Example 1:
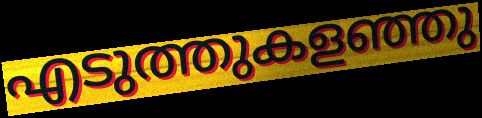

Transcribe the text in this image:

എടുത്തുകളഞ്ഞു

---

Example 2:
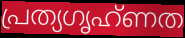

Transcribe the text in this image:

പ്രത്യഗൃഹ്ണത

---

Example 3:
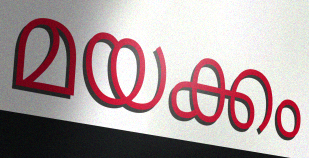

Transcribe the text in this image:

മയക്കം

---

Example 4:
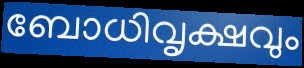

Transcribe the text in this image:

ബോധിവൃക്ഷവും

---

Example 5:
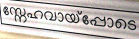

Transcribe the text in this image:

സ്നേഹവായ്പ്പോടെ